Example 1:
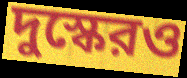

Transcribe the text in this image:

দুস্কেরও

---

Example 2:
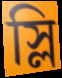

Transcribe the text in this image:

স্লি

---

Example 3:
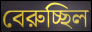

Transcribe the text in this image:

বেরুচ্ছিল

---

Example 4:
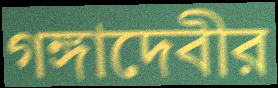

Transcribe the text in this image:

গঙ্গাদেবীর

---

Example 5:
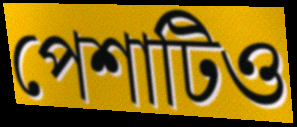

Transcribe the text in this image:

পেশাটিও